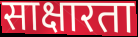
साक्षारता